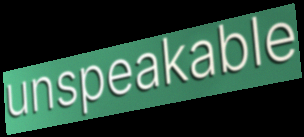
unspeakable